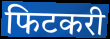
फिटकरी